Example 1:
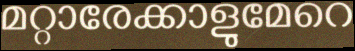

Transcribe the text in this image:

മറ്റാരേക്കാളുമേറെ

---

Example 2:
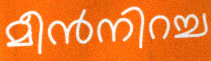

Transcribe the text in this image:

മീൻനിറച്ച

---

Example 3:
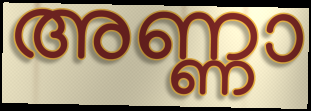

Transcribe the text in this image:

അണ്ണാ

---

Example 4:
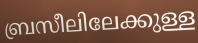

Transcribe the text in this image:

ബ്രസീലിലേക്കുള്ള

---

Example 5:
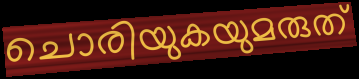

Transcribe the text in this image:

ചൊരിയുകയുമരുത്